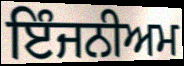
ਇੰਜਨੀਅਮ